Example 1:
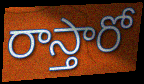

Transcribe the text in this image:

రాస్తారో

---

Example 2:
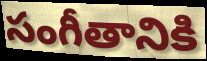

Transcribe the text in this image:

సంగీతానికి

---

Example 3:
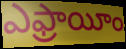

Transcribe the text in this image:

ఎఫ్రాయీం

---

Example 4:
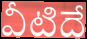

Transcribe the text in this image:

వీటిదే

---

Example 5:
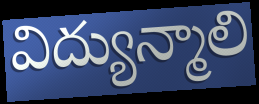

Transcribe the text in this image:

విద్యున్మాలి